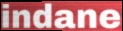
indane